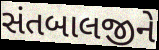
સંતબાલજીને